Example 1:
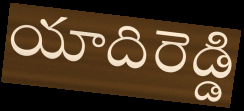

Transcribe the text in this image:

యాదిరెడ్డి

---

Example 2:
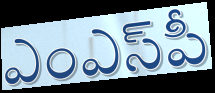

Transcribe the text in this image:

ఎంఎస్‌పీ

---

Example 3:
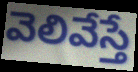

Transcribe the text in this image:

వెలివేస్తే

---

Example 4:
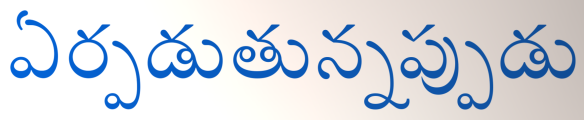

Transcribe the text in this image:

ఏర్పడుతున్నప్పుడు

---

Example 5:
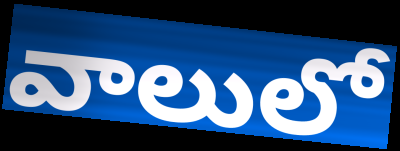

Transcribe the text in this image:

వాలులో